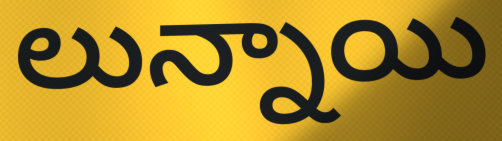
లున్నాయి